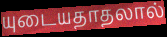
யுடையதாதலால்